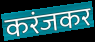
करंजकर